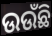
ଉଉଁଛି